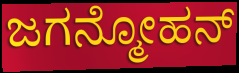
ಜಗನ್ಮೋಹನ್